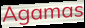
Agamas